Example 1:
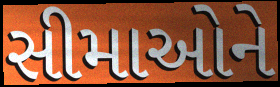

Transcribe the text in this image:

સીમાઓને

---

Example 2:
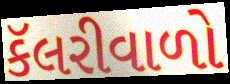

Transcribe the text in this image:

કૅલરીવાળો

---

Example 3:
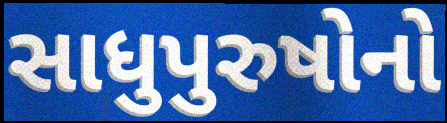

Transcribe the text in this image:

સાધુપુરુષોનો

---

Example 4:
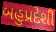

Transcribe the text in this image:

બહુપ્રદેશી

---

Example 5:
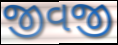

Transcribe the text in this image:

જીવજી